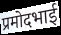
प्रमोदभाई